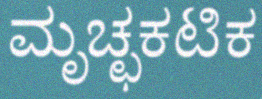
ಮೃಚ್ಛಕಟಿಕ